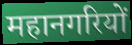
महानगरियों